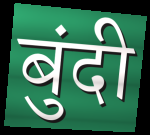
बुंदी